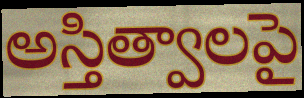
అస్తిత్వాలపై